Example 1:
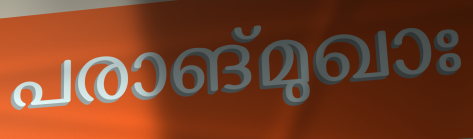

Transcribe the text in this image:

പരാങ്മുഖാഃ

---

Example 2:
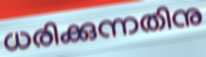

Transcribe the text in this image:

ധരിക്കുന്നതിനു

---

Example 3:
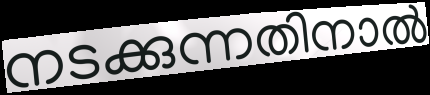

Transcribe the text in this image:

നടക്കുന്നതിനാൽ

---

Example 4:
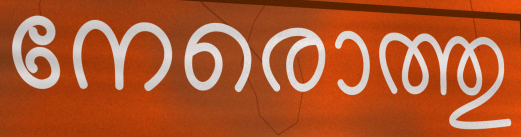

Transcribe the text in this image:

നേരൊത്തു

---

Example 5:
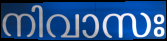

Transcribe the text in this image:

നിവാസഃ